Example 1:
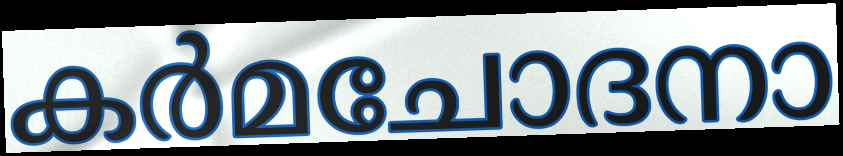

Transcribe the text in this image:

കർമചോദനാ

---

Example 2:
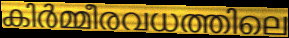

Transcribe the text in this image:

കിർമ്മീരവധത്തിലെ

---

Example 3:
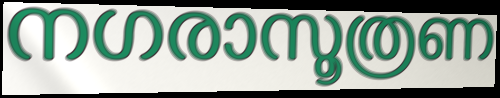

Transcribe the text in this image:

നഗരാസൂത്രണ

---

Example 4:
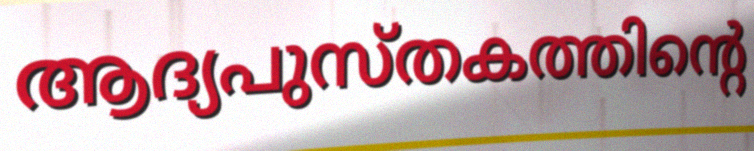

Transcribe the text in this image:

ആദ്യപുസ്തകത്തിന്റെ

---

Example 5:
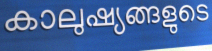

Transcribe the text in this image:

കാലുഷ്യങ്ങളുടെ